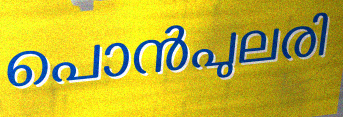
പൊൻപുലരി